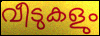
വീടുകളും